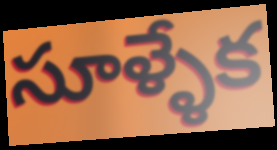
సూళ్ళేక